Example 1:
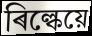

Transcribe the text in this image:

ৰিল্কেয়ে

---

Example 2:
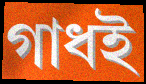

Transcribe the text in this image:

গাধই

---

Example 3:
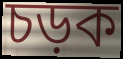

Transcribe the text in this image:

চড়ক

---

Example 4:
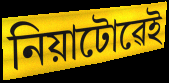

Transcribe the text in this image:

নিয়াটোৱেই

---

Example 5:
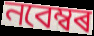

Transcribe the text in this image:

নবেম্বৰ